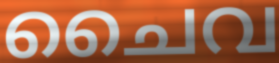
ചൈവ